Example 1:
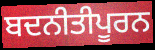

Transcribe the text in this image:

ਬਦਨੀਤੀਪੂਰਨ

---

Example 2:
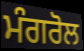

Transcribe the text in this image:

ਮੰਗਰੋਲ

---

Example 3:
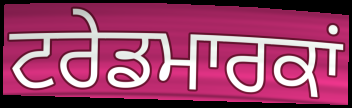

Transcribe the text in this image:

ਟਰੇਡਮਾਰਕਾਂ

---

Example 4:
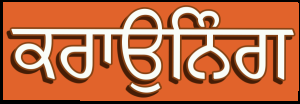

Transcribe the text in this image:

ਕਰਾਉਨਿੰਗ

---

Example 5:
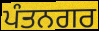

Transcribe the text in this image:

ਪੰਤਨਗਰ